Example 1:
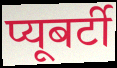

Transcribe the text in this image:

प्‍यूबर्टी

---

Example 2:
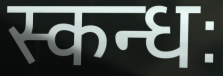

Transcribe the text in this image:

स्कन्धः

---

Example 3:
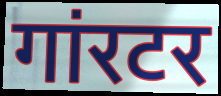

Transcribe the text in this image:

गांरटर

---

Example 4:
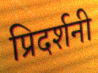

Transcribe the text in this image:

प्रिदर्शनी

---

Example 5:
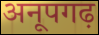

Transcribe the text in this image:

अनूपगढ़